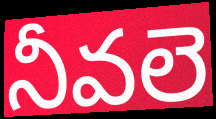
నీవలె